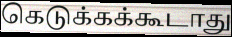
கெடுக்கக்கூடாது